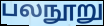
பலநூறு